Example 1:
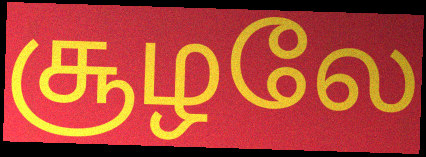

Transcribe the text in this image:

சூழலே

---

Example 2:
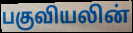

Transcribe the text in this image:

பகுவியலின்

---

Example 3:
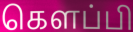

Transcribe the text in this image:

கெளப்பி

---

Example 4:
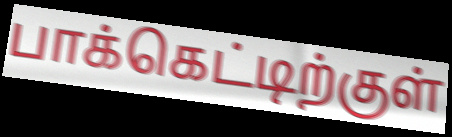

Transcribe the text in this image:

பாக்கெட்டிற்குள்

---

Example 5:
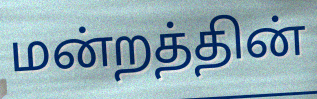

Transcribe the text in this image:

மன்றத்தின்